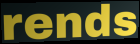
rends